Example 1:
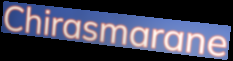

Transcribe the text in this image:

Chirasmarane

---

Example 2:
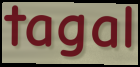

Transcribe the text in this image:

tagal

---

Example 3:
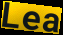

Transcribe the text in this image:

Lea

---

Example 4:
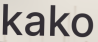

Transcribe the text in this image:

kako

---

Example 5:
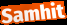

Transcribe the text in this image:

Samhit